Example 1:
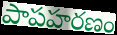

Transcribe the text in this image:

పాపహరణం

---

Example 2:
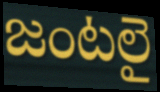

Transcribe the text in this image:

జంటలై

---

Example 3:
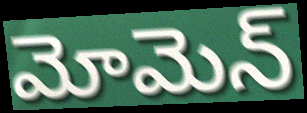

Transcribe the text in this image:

మోమెన్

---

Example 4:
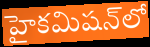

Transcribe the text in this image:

హైకమిషన్‌లో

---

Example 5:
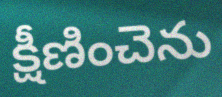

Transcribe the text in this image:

క్షీణించెను